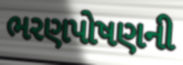
ભરણપોષણની